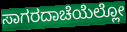
ಸಾಗರದಾಚೆಯೆಲ್ಲೋ